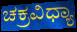
ಚಕ್ರವಿಧ್ಯಾ